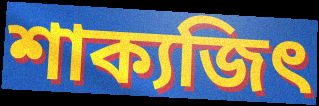
শাক্যজিৎ